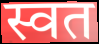
स्वत